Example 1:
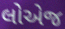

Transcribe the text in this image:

લોએજ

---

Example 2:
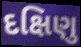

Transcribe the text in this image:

દક્ષિણુ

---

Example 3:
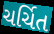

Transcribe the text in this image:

ચર્ચિત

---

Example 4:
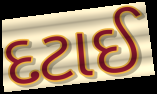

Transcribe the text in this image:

દટાઈ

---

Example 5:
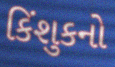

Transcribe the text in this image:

કિંશુકનો